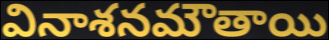
వినాశనమౌతాయి